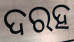
ଦରହ